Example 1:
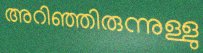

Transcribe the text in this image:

അറിഞ്ഞിരുന്നുള്ളു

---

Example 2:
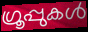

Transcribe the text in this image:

ഗ്രൂപ്പുകൾ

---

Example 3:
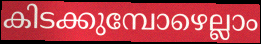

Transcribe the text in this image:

കിടക്കുമ്പോഴെല്ലാം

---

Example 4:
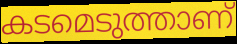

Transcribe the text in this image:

കടമെടുത്താണ്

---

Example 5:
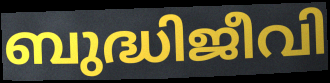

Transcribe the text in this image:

ബുദ്ധിജീവി